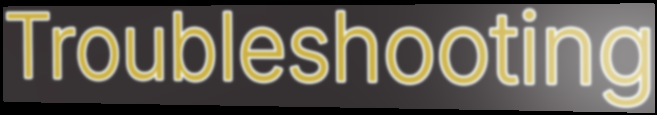
Troubleshooting